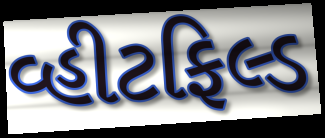
વ્હીટફિલ્ડ